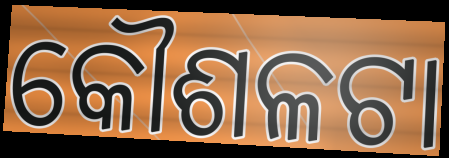
କୌଶଳଟା